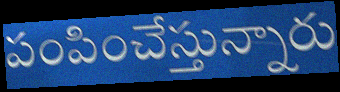
పంపించేస్తున్నారు